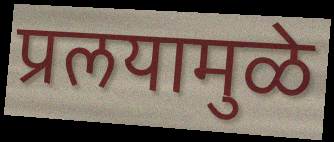
प्रलयामुळे